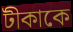
টীকাকে